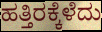
ಹತ್ತಿರಕ್ಕೆಳೆದು